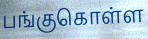
பங்குகொள்ள